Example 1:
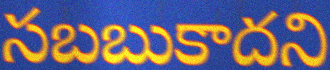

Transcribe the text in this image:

సబబుకాదని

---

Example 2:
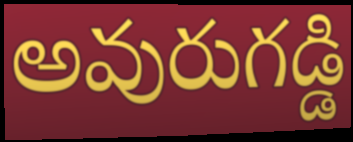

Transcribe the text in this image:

అవురుగడ్డి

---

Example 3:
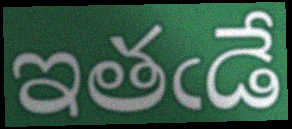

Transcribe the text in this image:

ఇతఁడే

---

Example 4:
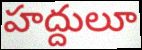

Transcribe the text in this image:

హద్దులూ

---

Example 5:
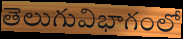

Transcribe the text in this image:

తెలుగువిభాగంలో